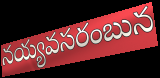
నయ్యవసరంబున